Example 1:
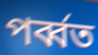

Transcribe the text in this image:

পৰ্ব্বত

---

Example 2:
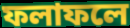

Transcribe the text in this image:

ফলাফলে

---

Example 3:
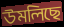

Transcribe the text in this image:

উমলিছে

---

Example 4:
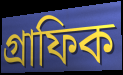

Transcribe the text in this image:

গ্ৰাফিক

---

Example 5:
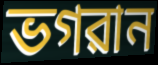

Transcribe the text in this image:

ভগৱান